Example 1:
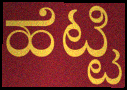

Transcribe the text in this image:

ಹೆಟ್ಟಿ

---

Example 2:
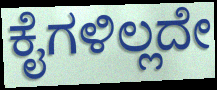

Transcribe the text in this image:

ಕೈಗಳಿಲ್ಲದೇ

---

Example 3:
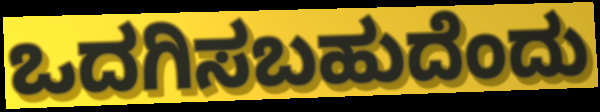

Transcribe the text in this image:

ಒದಗಿಸಬಹುದೆಂದು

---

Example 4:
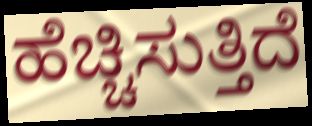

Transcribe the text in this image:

ಹೆಚ್ಚಿಸುತ್ತಿದೆ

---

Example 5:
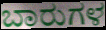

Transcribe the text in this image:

ಬಾರುಗಳ